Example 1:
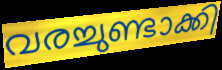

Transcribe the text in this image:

വരച്ചുണ്ടാക്കി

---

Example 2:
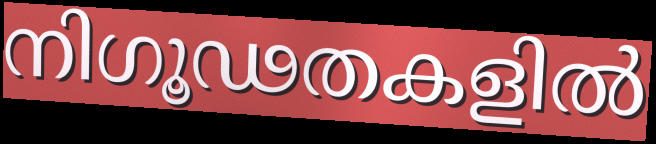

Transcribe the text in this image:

നിഗൂഢതകളിൽ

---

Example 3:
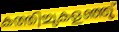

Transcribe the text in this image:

കത്തിച്ചുകളഞ്ഞു്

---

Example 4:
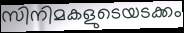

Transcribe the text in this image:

സിനിമകളുടെയടക്കം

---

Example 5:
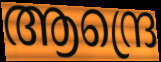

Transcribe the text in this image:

ആന്ദ്രെ